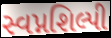
સ્વપ્નશિલ્પી